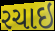
રચાઇ